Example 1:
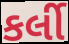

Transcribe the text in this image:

કર્લી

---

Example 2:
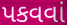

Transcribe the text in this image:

પકવવાં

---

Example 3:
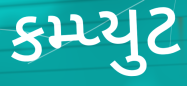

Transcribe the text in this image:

કમ્પ્યુટ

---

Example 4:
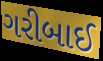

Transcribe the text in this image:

ગરીબાઈ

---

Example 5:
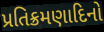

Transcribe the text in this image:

પ્રતિક્રમણાદિનો